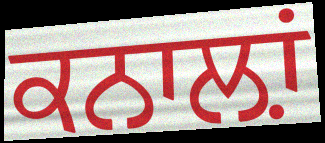
ਕਨਾਲ਼ਾਂ